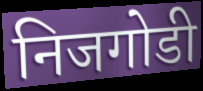
निजगोडी